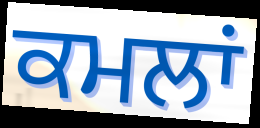
ਕਮਲਾਂ